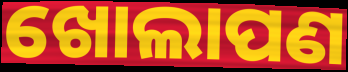
ଖୋଲାପଣ